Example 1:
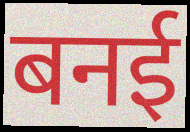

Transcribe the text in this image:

बनई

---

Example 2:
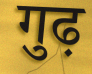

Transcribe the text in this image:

गुढ़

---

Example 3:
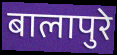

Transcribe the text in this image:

बालापुरे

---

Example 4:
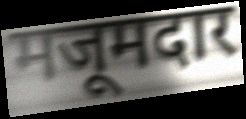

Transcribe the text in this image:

मजूमदार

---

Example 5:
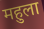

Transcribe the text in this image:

महुला